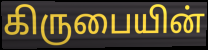
கிருபையின்